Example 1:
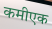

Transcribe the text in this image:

कमीएक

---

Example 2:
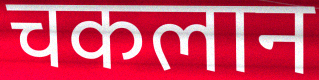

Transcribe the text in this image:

चकलान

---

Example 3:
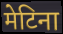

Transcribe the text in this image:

मेटिना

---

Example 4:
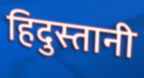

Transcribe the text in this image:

हिदुस्तानी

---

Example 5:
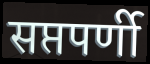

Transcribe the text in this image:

सप्तपर्णी